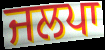
ਜਲਪਾ